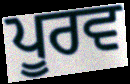
ਪੂਰਵ